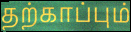
தற்காப்பும்